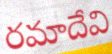
రమాదేవి